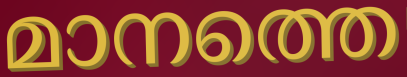
മാനത്തെ